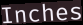
Inches